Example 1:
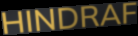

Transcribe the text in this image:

HINDRAF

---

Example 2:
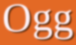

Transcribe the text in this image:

Ogg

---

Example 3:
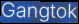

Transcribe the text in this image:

Gangtok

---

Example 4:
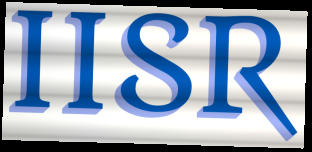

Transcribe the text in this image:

IISR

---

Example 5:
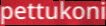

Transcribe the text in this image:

pettukoni